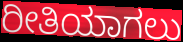
ರೀತಿಯಾಗಲು